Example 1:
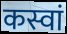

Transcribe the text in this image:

कस्‍वां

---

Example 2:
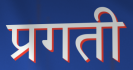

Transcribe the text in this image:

प्रगती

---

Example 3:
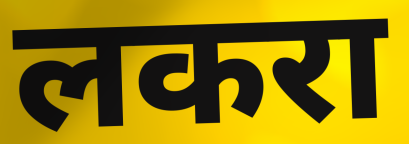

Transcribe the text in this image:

लकरा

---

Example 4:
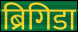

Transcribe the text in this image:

ब्रिगिडा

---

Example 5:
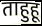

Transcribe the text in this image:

ताहुहू